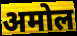
अमोल